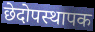
छेदोपस्थापक